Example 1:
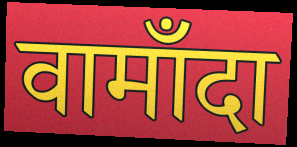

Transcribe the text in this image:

वामाँदा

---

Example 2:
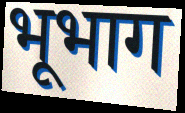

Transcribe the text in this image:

भूभाग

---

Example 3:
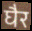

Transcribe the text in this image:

घैर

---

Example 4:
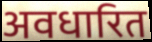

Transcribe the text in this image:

अवधारित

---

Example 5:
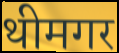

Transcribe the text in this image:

थीमगर